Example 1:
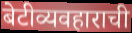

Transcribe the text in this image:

बेटीव्यवहाराची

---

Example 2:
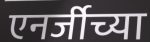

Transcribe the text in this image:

एनर्जीच्या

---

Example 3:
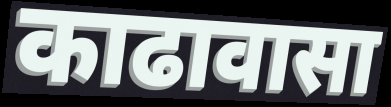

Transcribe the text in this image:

काढावासा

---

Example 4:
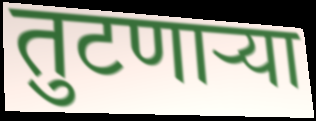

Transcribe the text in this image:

तुटणार्‍या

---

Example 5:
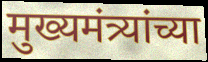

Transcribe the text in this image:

मुख्यमंत्र्यांच्या